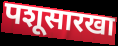
पशूसारखा